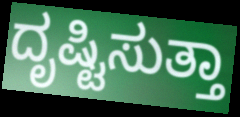
ದೃಷ್ಟಿಸುತ್ತಾ